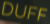
DUFF